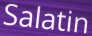
Salatin